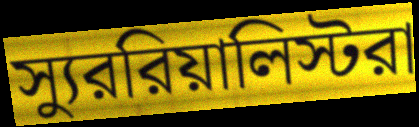
স্যুররিয়ালিস্টরা